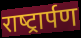
राष्ट्रार्पण